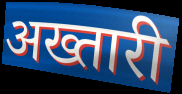
अख्तारी